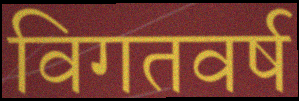
विगतवर्ष